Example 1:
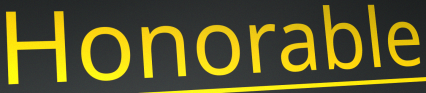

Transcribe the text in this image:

Honorable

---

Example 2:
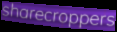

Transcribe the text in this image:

sharecroppers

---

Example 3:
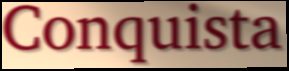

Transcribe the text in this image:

Conquista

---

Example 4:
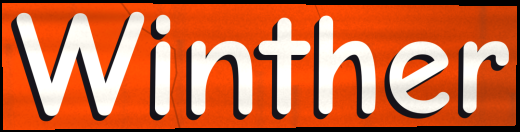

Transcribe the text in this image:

Winther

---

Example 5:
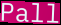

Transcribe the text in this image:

Pall